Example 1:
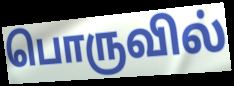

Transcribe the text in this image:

பொருவில்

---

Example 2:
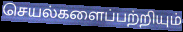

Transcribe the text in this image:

செயல்களைப்பற்றியும்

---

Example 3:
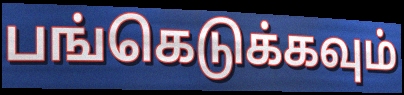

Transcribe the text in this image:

பங்கெடுக்கவும்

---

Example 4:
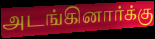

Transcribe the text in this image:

அடங்கினார்க்கு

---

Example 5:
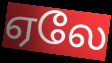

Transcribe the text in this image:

ஏலே